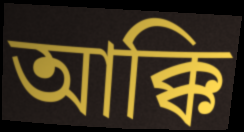
আক্কি